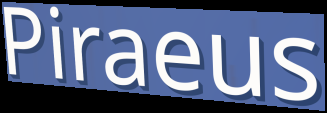
Piraeus